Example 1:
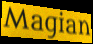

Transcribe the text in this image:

Magian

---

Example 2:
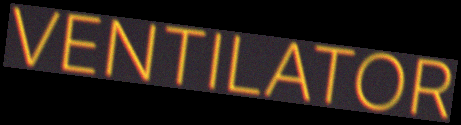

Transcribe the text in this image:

VENTILATOR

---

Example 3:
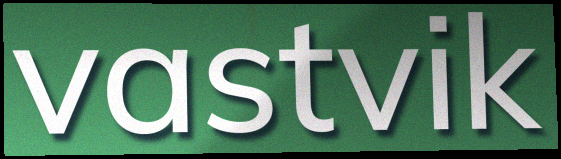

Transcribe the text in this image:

vastvik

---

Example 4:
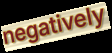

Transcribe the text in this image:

negatively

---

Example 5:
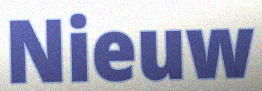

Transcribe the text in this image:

Nieuw